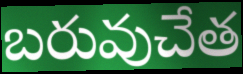
బరువుచేత